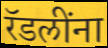
रॅडलींना